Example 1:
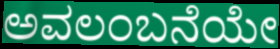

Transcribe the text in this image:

ಅವಲಂಬನೆಯೇ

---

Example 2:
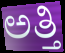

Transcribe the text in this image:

ಅತ್ತಿ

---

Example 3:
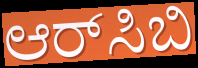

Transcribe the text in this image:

ಆರ್‌ಸಿಬಿ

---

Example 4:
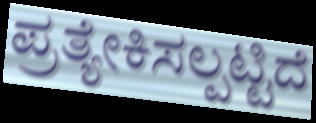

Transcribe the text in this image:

ಪ್ರತ್ಯೇಕಿಸಲ್ಪಟ್ಟಿದೆ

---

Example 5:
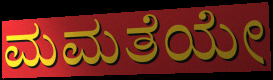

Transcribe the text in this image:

ಮಮತೆಯೇ